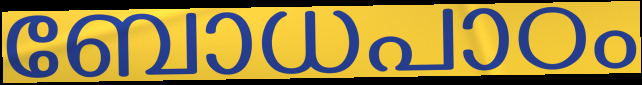
ബോധപാഠം